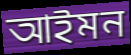
আইমন